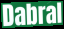
Dabral